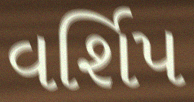
વર્શિપ